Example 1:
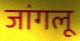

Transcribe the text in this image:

जांगलू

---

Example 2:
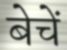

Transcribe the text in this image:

बेचें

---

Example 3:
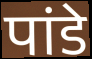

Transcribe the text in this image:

पांडे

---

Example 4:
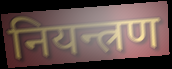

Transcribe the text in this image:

नियन्त्रण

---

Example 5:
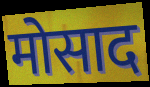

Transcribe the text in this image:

मोसाद